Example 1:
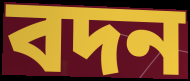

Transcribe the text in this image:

বদন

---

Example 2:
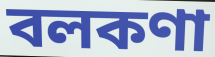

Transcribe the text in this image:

বলকণা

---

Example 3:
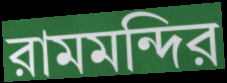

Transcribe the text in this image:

রামমন্দির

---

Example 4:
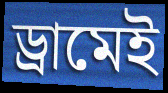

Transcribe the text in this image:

ড্রামেই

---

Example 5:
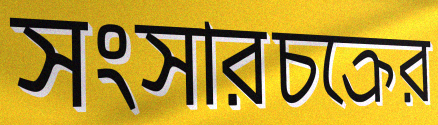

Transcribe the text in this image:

সংসারচক্রের